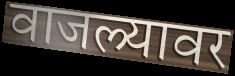
वाजल्यावर